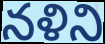
నళిని